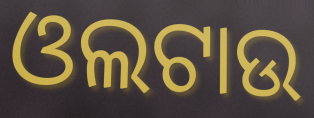
ଓଲଟାଉ